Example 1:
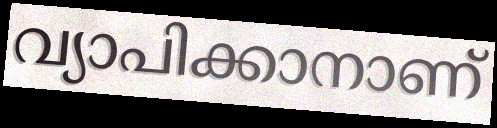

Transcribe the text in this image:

വ്യാപിക്കാനാണ്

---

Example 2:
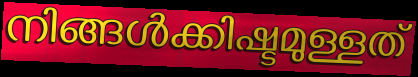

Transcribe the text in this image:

നിങ്ങൾക്കിഷ്ടമുള്ളത്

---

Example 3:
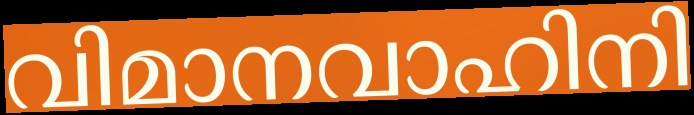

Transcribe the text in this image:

വിമാനവാഹിനി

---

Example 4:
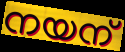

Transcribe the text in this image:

നയന്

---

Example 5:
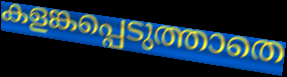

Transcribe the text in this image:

കളങ്കപ്പെടുത്താതെ